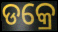
ଡକ୍ରେ